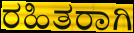
ರಹಿತರಾಗಿ